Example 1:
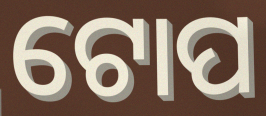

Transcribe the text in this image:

ଟୋପ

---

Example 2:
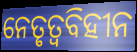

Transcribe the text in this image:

ନେତୃତ୍ୱବିହୀନ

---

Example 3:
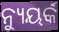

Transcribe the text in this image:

ନ୍ୟୁୟର୍କ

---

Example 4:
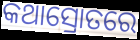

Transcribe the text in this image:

କଥାସ୍ରୋତରେ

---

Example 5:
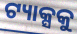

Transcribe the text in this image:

ଟ୍ୟାକ୍ସକୁ